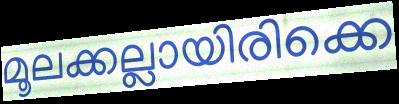
മൂലക്കല്ലായിരിക്കെ